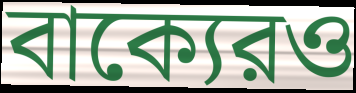
বাক্যেরও